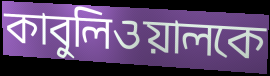
কাবুলিওয়ালকে